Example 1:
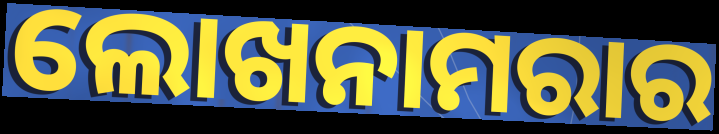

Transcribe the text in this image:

ଲୋଖନାମରାର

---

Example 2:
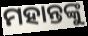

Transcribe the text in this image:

ମହାନ୍ତଙ୍କୁ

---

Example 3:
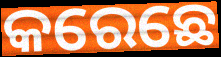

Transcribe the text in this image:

କରେଛେ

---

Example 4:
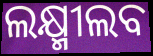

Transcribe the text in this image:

ଲକ୍ଷ୍ମୀଲବ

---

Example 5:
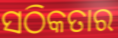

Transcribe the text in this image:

ସଠିକତାର